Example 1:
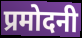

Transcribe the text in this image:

प्रमोदनी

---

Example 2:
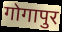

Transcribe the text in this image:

गोगापुर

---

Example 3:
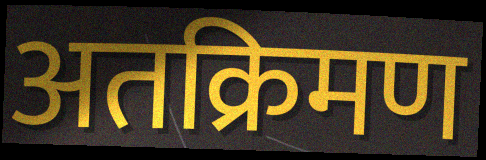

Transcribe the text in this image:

अतक्रिमण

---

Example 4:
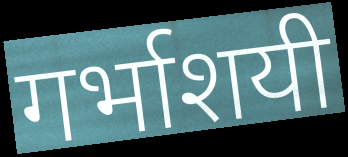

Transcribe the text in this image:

गर्भाशयी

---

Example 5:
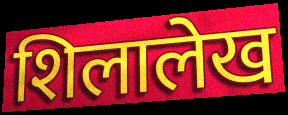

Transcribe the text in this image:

शिलालेख